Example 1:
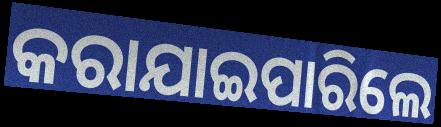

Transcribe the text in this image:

କରାଯାଇପାରିଲେ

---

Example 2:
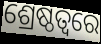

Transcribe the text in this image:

ଶ୍ରେଷ୍ଠତ୍ୱରେ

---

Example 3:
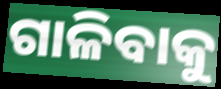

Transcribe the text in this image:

ଗାଳିବାକୁ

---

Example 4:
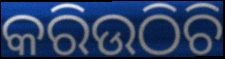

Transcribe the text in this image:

କରିଉଠିଚି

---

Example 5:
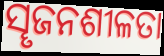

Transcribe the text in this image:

ସୄଜନଶୀଳତା